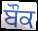
ਬੌਕ